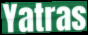
Yatras